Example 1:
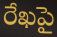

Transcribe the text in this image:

రేఖపై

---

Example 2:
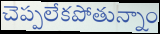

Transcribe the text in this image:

చెప్పలేకపోతున్నాం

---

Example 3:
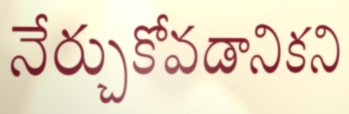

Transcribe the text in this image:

నేర్చుకోవడానికని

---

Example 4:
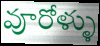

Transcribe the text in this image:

వూరోళ్ళు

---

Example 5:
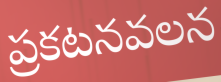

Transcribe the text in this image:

ప్రకటనవలన